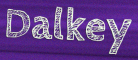
Dalkey